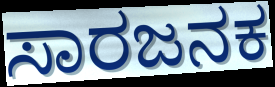
ಸಾರಜನಕ